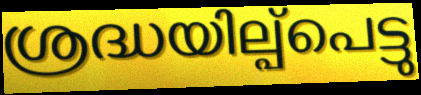
ശ്രദ്ധയില്പ്പെട്ടു